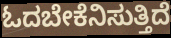
ಓದಬೇಕೆನಿಸುತ್ತಿದೆ